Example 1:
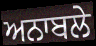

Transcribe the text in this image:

ਅਨਾਬਲੇ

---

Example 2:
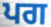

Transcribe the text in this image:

ਪਗ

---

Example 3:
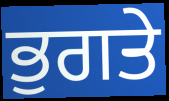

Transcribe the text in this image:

ਭੁਗਤੇ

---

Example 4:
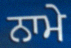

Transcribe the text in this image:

ਨਾਮੇ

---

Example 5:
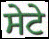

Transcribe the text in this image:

ਸੇਟੇ